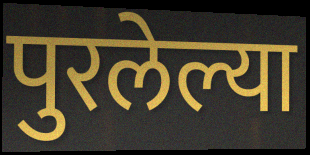
पुरलेल्या